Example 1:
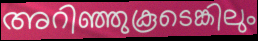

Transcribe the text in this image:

അറിഞ്ഞുകൂടെങ്കിലും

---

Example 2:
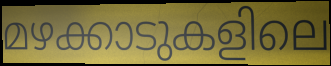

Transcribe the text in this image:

മഴക്കാടുകളിലെ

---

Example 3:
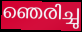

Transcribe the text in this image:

ഞെരിച്ചു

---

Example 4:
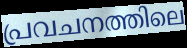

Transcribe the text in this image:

പ്രവചനത്തിലെ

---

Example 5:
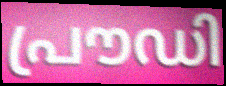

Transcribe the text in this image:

പ്രൗഡി